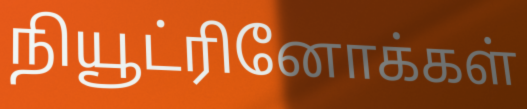
நியூட்ரினோக்கள்